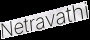
Netravathi